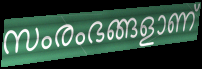
സംരംഭങ്ങളാണ്